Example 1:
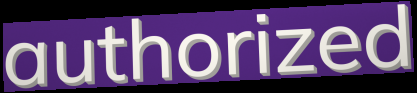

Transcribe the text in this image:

authorized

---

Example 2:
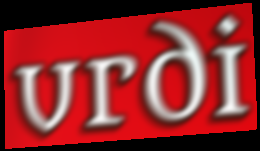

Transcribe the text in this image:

urdi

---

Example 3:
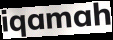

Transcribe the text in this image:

iqamah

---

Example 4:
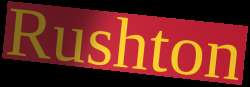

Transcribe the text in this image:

Rushton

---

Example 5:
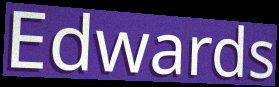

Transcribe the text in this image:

Edwards